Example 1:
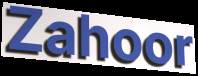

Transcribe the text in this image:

Zahoor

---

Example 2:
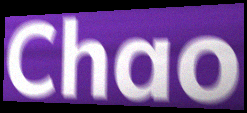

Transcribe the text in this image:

Chao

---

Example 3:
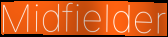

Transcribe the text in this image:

Midfielder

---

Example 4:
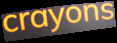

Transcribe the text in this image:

crayons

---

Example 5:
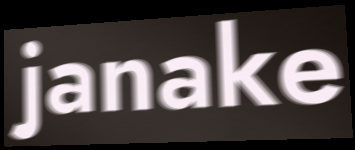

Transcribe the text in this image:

janake